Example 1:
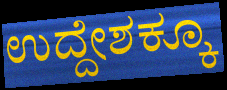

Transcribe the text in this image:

ಉದ್ದೇಶಕ್ಕೂ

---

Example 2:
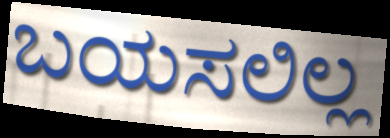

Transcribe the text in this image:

ಬಯಸಲಿಲ್ಲ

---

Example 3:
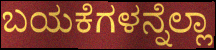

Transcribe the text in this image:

ಬಯಕೆಗಳನ್ನೆಲ್ಲಾ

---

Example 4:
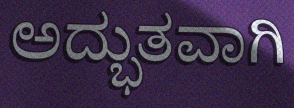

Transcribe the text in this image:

ಅದ್ಭುತವಾಗಿ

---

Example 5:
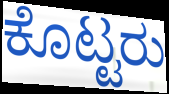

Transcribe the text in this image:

ಕೊಟ್ಟರು